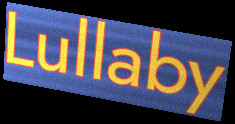
Lullaby